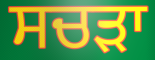
ਸਚੜਾ